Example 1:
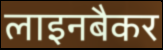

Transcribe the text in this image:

लाइनबैकर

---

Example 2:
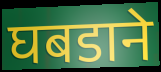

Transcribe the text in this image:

घबडाने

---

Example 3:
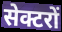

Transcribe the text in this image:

सेक्टरों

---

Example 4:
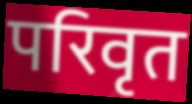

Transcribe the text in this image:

परिवृत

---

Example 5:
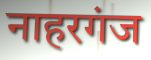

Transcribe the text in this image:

नाहरगंज